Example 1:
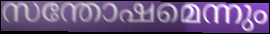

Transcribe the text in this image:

സന്തോഷമെന്നും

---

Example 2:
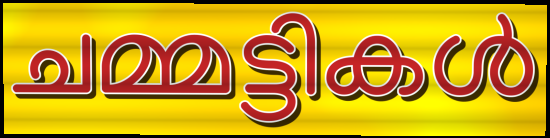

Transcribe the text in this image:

ചമ്മട്ടികൾ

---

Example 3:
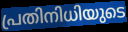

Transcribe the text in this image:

പ്രതിനിധിയുടെ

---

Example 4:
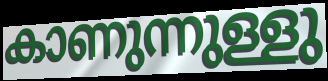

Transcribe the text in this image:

കാണുന്നുള്ളു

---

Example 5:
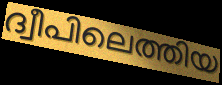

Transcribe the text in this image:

ദ്വീപിലെത്തിയ